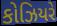
કોઝિયરે